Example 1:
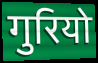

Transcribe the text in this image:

गुरियो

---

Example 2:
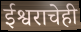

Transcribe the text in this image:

ईश्वराचेही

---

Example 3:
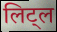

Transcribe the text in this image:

लिट्ल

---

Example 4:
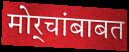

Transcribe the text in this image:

मोर्चांबाबत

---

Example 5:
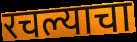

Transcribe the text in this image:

रचल्याचा